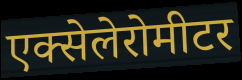
एक्सेलेरोमीटर